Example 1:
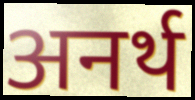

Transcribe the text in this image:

अनर्थ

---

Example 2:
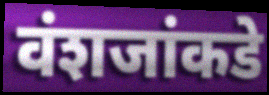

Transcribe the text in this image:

वंशजांकडे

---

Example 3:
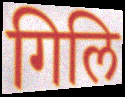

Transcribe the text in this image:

गिलि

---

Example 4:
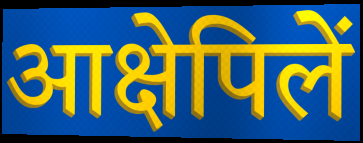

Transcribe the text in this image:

आक्षेपिलें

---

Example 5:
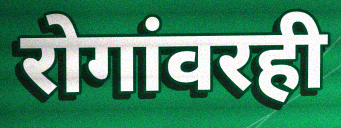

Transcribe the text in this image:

रोगांवरही